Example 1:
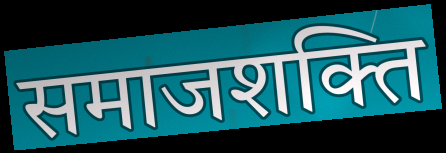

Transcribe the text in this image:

समाजशक्ति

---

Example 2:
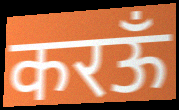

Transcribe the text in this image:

करऊँ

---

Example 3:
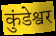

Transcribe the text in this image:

कुंडेश्वर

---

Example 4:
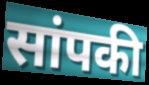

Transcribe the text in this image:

सांपकी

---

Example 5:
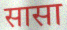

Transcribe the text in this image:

सासा